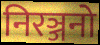
निरञ्जनो